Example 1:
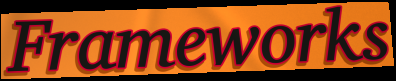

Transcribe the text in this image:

Frameworks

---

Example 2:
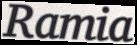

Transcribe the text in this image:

Ramia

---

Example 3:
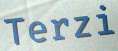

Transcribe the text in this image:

Terzi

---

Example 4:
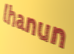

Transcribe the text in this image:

lhanun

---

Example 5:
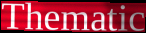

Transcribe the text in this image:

Thematic